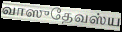
வாஸுதேவஸ்ய